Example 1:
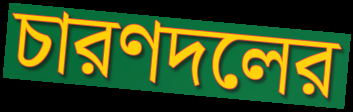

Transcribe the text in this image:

চারণদলের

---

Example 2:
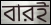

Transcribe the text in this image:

বারই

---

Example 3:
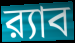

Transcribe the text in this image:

র‍্যাব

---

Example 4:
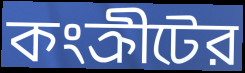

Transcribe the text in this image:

কংক্রীটের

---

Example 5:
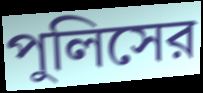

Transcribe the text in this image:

পুলিসের